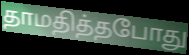
தாமதித்தபோது